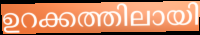
ഉറക്കത്തിലായി